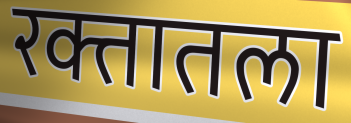
रक्तातला